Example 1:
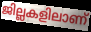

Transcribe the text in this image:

ജില്ലകളിലാണ്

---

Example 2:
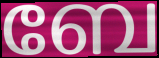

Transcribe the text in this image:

ബേ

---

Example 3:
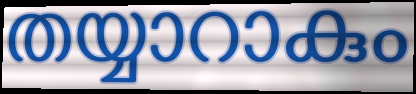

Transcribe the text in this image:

തയ്യാറാകും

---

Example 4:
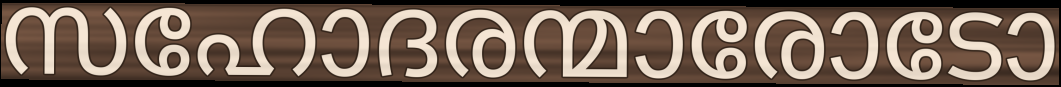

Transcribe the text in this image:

സഹോദരന്മാരോടോ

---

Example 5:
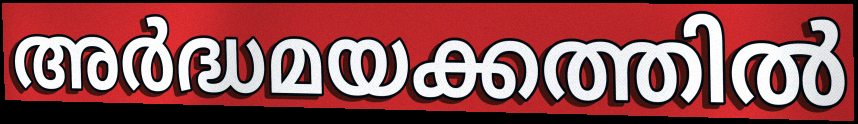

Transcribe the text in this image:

അർദ്ധമയക്കത്തിൽ